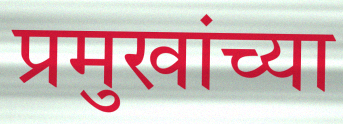
प्रमुखांच्या